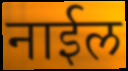
नाईल